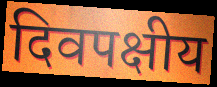
दिवपक्षीय